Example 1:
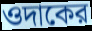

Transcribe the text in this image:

ওদাকের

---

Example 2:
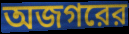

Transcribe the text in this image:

অজগরের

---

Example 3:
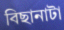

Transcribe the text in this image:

বিছানাটা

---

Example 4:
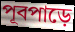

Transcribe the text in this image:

পূবপাড়ে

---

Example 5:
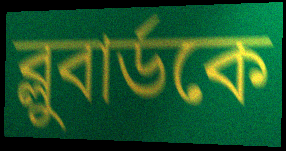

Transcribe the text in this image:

ব্লুবার্ডকে